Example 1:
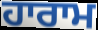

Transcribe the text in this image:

ਹਾਰਾਮ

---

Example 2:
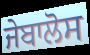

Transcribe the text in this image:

ਜੇਬਾਲੋਸ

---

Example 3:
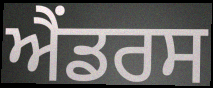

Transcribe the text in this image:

ਐਂਡਰਸ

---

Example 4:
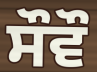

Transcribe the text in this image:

ਸੌਵੌ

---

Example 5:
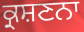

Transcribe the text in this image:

ਕ੍ਰਸ਼ਣਨਾ